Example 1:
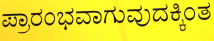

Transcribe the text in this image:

ಪ್ರಾರಂಭವಾಗುವುದಕ್ಕಿಂತ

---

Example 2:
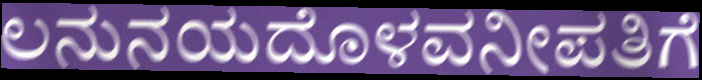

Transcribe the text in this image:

ಲನುನಯದೊಳವನೀಪತಿಗೆ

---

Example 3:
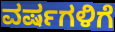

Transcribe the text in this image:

ವರ್ಷಗಳಿಗೆ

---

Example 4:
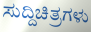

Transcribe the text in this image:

ಸುದ್ದಿಚಿತ್ರಗಳು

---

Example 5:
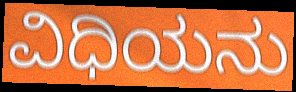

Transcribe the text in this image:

ವಿಧಿಯನು